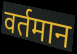
वर्तमान